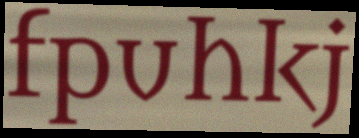
fpuhkj